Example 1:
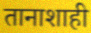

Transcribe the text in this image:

तानाशाही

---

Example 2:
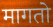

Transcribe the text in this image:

मागतो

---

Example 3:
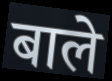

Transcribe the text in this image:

बाले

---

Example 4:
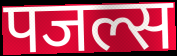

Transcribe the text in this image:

पजल्स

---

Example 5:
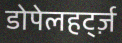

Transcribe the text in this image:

डोपेलहर्ट्ज़